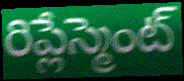
రిప్లేస్మెంట్